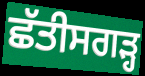
ਛੱਤੀਸਗਡ਼੍ਹ